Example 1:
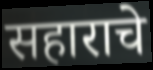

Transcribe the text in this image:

सहाराचे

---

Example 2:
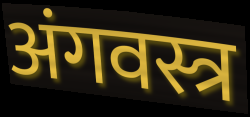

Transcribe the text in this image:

अंगवस्त्र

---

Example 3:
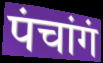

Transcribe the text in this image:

पंचांगं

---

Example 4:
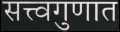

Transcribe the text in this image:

सत्त्वगुणात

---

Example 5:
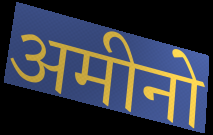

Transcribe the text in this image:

अमीनो